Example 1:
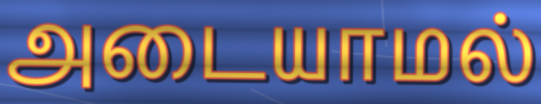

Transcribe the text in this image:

அடையாமல்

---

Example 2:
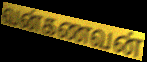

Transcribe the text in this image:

வன்கணவன்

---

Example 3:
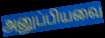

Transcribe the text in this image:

அனுப்பியவை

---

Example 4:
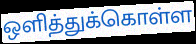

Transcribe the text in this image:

ஒளித்துக்கொள்ள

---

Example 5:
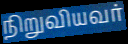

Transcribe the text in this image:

நிறுவியவர்